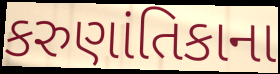
કરુણાંતિકાના